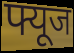
फ्यूज